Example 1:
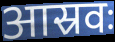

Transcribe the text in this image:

आस्रवः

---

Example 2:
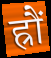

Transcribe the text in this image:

ह्रौं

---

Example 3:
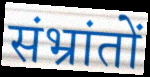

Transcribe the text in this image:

संभ्रांतों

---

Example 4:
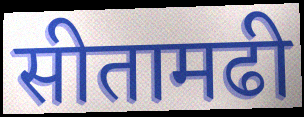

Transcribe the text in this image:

सीतामढी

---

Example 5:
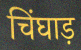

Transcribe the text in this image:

चिंघाड़